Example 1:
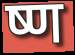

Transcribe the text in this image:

ष्ण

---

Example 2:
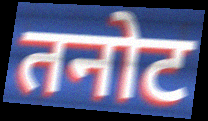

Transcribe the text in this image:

तनोट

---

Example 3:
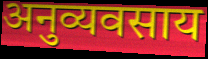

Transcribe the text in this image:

अनुव्यवसाय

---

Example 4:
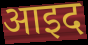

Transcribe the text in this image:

आइद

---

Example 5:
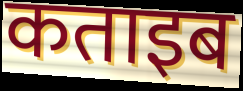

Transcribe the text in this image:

कताइब